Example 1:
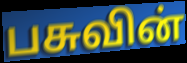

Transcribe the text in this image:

பசுவின்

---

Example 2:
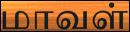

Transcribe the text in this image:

மாவள்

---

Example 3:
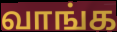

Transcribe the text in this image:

வாங்க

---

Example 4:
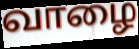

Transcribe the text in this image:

வாழை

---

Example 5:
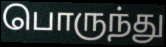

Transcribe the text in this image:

பொருந்து